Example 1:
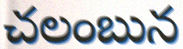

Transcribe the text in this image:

చలంబున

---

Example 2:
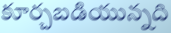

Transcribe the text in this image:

కూర్చబడియున్నది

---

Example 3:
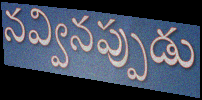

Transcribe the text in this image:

నవ్వినప్పుడు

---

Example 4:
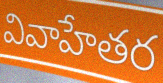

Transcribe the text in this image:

వివాహేతర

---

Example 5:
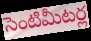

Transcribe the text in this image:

సెంటిమీటర్ల